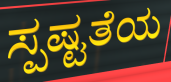
ಸ್ಪಷ್ಟತೆಯ